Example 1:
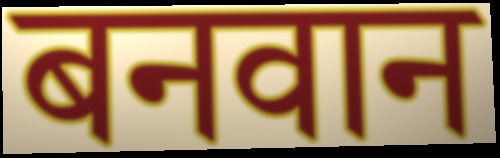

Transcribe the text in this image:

बनवान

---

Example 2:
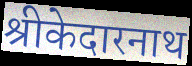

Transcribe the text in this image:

श्रीकेदारनाथ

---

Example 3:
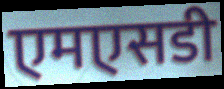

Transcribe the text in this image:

एमएसडी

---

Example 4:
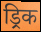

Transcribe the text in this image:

ड्रिक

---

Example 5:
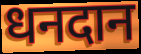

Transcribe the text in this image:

धनदान